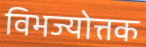
विभज्योत्तक